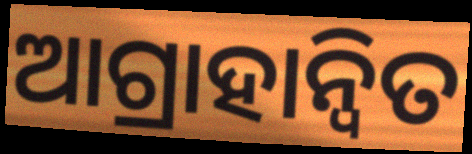
ଆଗ୍ରାହାନ୍ୱିତ